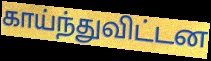
காய்ந்துவிட்டன